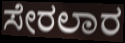
ಸೇರಲಾರ